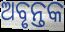
ଅବୃନ୍ତକ